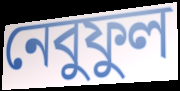
নেবুফুল